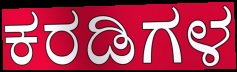
ಕರಡಿಗಳ